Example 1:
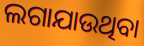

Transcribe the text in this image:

ଲଗାଯାଉଥିବା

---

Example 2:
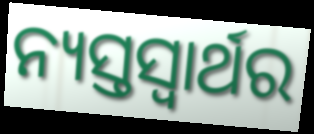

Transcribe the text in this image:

ନ୍ୟସ୍ତସ୍ୱାର୍ଥର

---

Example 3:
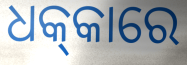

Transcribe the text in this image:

ଧକ୍‌କାରେ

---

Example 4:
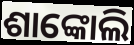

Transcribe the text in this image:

ଶାଙ୍କୋଲି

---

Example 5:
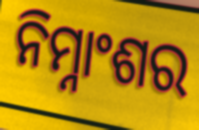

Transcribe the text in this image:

ନିମ୍ନାଂଶର